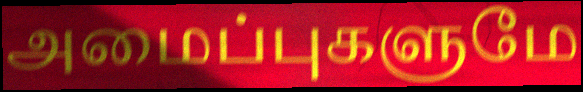
அமைப்புகளுமே